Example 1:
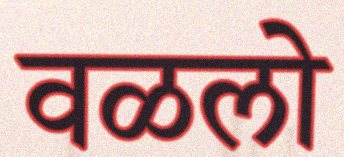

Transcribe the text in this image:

वळलो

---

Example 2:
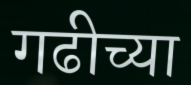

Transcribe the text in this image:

गढीच्या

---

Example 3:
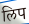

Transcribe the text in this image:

लिप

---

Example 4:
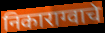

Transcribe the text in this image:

निकाराग्वाचे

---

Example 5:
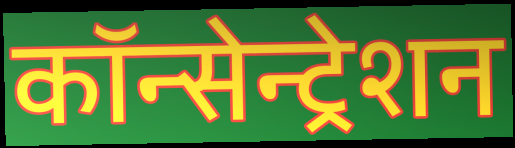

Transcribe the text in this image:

कॉन्सेन्ट्रेशन